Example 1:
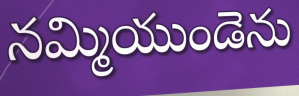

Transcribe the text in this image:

నమ్మియుండెను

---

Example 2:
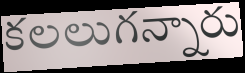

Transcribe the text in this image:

కలలుగన్నారు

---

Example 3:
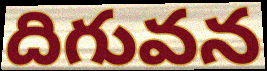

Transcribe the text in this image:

దిగువన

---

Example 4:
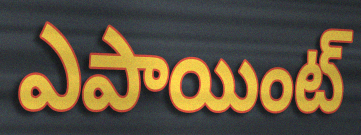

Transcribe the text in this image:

ఎపాయింట్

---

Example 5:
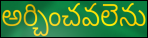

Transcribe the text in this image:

అర్చించవలెను